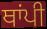
ਥਾਂਪੀ